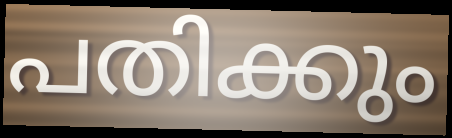
പതിക്കും